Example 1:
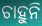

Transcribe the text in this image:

ଚାହୁନି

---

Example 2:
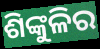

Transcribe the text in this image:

ଶିଙ୍କୁଳିର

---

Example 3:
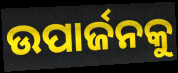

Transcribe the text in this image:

ଉପାର୍ଜନକୁ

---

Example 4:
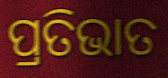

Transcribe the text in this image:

ପ୍ରତିଭାତ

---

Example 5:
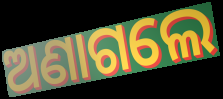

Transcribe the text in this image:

ଅଣାଗଲେ